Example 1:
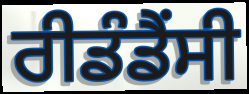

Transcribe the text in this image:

ਰੀਡੰਡੈਂਸੀ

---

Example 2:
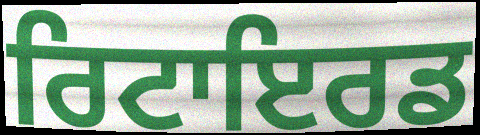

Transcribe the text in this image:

ਰਿਟਾਇਰਡ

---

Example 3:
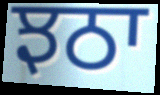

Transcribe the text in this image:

ਝਠਾ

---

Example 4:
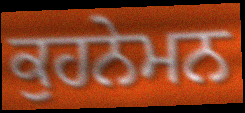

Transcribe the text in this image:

ਕੁਹਨੇਮਨ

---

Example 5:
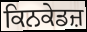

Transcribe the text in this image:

ਕਿਨਕੇਡਜ਼